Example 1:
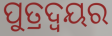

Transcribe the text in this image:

ପୁତ୍ରଦ୍ୱୟର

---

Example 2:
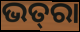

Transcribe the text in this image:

ଭତ୍‌ରା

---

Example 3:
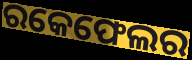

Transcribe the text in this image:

ରକେଫେଲର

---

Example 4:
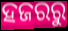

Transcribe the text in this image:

ହଜରରୁ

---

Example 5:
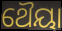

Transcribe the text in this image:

ଥୈୟା